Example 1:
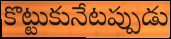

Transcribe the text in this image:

కొట్టుకునేటప్పుడు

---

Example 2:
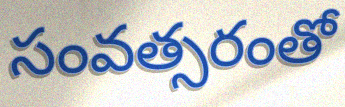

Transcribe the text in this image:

సంవత్సరంతో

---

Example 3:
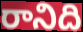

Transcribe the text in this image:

రానిది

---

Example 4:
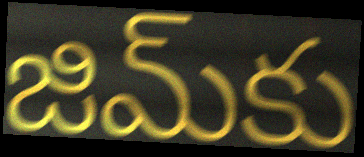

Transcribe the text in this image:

జిమ్‌కు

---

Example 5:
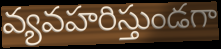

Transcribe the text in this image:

వ్యవహరిస్తుండగా